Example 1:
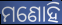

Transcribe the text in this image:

ମଣୋହି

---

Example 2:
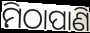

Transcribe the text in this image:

ମିଠାପାଣି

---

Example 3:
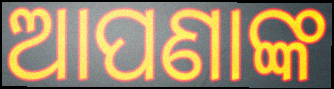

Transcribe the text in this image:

ଆପଣାଙ୍କ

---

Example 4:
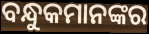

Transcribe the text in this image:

ବନ୍ଧୁକମାନଙ୍କର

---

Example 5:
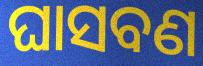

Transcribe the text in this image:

ଘାସବଣ